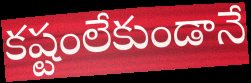
కష్టంలేకుండానే